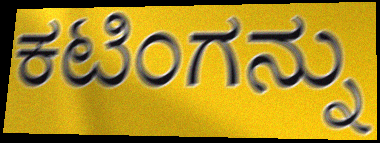
ಕಟಿಂಗನ್ನು